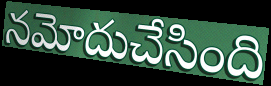
నమోదుచేసింది